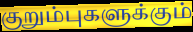
குறும்புகளுக்கும்